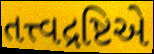
તત્ત્વદ્રષ્ટિએ